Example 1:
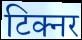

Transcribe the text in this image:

टिक्नर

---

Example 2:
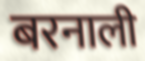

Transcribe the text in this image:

बरनाली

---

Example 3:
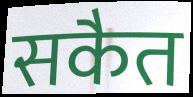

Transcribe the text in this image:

सकैत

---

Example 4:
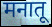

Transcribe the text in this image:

मनातू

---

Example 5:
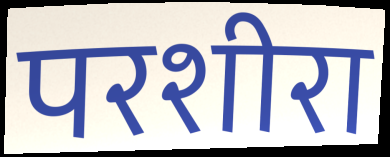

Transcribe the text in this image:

परशीरा